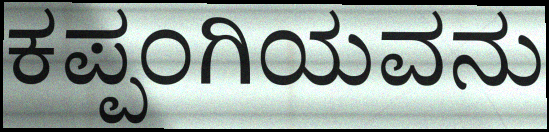
ಕಪ್ಪಂಗಿಯವನು